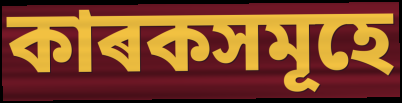
কাৰকসমূহে